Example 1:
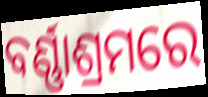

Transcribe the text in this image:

ବର୍ଣ୍ଣାଶ୍ରମରେ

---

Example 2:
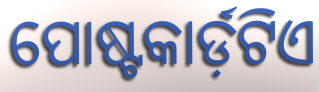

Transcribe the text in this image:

ପୋଷ୍ଟକାର୍ଡ଼ଟିଏ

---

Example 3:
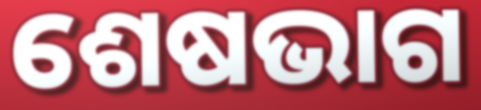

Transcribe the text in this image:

ଶେଷଭାଗ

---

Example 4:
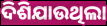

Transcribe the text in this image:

ଦିଶିଯାଉଥିଲା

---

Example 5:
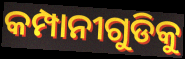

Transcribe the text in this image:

କମ୍ପାନୀଗୁଡିକୁ